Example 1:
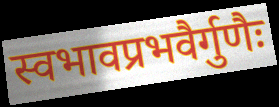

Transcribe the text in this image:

स्वभावप्रभवैर्गुणैः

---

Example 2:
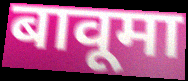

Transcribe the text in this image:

बावूमा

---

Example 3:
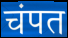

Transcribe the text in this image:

चंपत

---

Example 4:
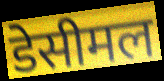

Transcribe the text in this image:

डेसीमल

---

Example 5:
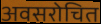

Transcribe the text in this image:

अवसरोचित